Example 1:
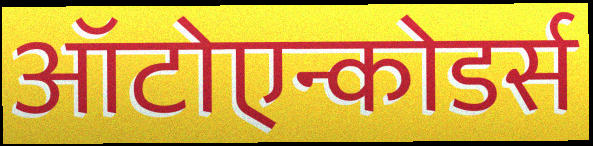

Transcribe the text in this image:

ऑटोएन्कोडर्स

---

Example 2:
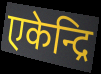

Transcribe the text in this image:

एकेन्द्रि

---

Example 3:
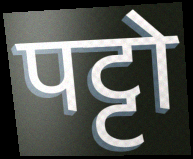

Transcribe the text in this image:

पट्टो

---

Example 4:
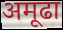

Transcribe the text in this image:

अमूढा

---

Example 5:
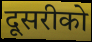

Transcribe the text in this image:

दूसरीको